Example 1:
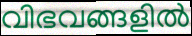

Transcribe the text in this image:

വിഭവങ്ങളിൽ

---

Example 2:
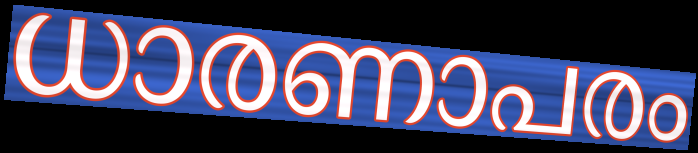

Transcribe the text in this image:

ധാരണാപരം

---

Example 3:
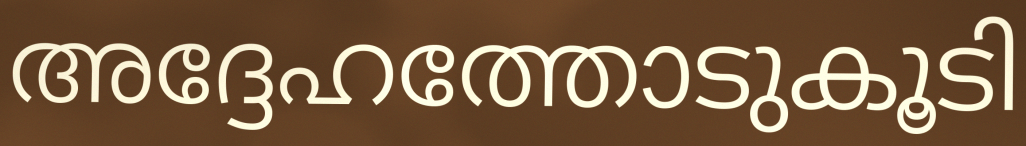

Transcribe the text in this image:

അദ്ദേഹത്തോടുകൂടി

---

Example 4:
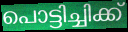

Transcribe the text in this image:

പൊട്ടിച്ചിക്ക്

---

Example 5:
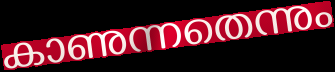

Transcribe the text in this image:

കാണുന്നതെന്നും